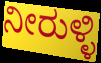
ನೀರುಳ್ಳಿ